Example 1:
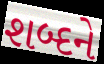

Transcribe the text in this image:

શબ્દને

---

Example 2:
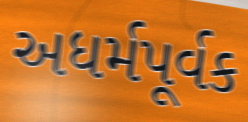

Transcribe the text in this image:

અધર્મપૂર્વક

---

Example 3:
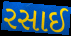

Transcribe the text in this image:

રસાઈ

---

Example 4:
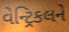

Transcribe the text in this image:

વેન્ટ્રિકલને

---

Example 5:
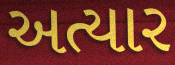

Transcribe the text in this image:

અત્યાર